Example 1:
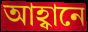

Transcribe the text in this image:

আহ্বানে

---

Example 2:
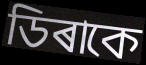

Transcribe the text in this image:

ডিৰাকে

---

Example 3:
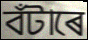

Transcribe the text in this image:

বঁটাৰে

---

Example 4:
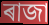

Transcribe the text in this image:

ৰাজা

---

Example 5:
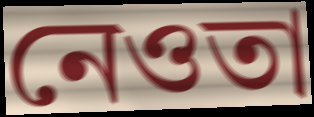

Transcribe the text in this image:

নেওতা